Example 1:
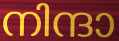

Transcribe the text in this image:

നിന്ദാ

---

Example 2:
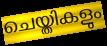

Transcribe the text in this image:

ചെയ്തികളും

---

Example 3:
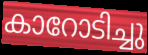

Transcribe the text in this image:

കാറോടിച്ചു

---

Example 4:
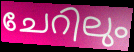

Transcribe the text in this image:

ചേറിലും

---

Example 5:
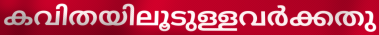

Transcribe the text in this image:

കവിതയിലൂടുള്ളവർക്കതു